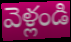
వెళ్లండి